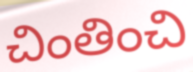
చింతించి